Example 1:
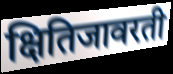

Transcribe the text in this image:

क्षितिजावरती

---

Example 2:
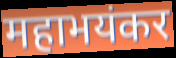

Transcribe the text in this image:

महाभयंकर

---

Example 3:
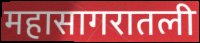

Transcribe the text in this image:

महासागरातली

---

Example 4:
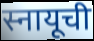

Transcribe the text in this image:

स्नायूची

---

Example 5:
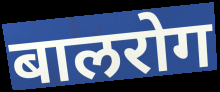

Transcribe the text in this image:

बालरोग